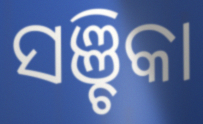
ସଞ୍ଚିକା